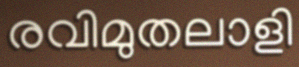
രവിമുതലാളി